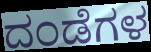
ದಂಡೆಗಳ